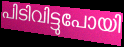
പിടിവിട്ടുപോയി